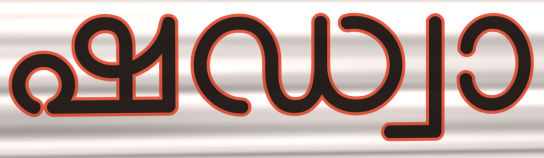
ഷഡ്വാ